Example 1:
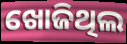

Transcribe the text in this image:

ଖୋଜିଥିଲ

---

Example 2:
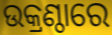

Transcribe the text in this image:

ଉକ୍ରଣ୍ଠାରେ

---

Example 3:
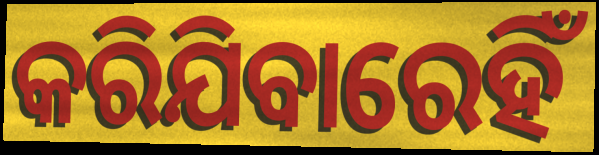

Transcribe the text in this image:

କରିଯିବାରେହିଁ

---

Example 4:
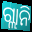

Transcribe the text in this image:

ଗ୍ଲାନି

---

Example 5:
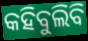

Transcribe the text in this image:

କହିବୁଲିବି